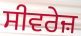
ਸੀਵਰੇਜ਼